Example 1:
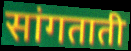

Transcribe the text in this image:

सांगताती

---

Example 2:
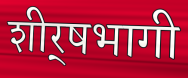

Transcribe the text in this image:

शीर्षभागी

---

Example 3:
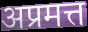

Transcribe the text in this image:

अप्रमत्त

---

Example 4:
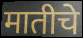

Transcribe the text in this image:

मातीचे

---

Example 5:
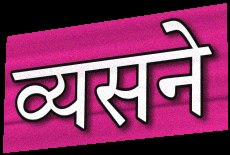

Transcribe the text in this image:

व्यसने